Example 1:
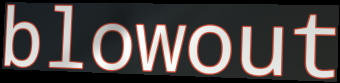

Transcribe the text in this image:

blowout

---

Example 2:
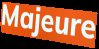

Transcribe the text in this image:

Majeure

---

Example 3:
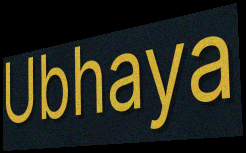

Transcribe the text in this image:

Ubhaya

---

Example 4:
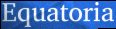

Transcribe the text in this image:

Equatoria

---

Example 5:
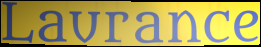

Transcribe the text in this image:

Laurance